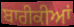
ਬਾਰੀਕੀਆਂ